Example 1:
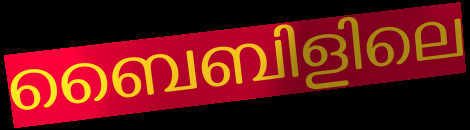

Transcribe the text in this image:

ബൈബിളിലെ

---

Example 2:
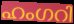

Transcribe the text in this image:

ഹംഗറി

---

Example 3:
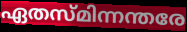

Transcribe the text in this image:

ഏതസ്മിന്നന്തരേ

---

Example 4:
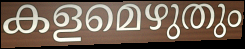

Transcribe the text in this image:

കളമെഴുതും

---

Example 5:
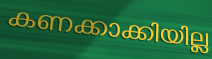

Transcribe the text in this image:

കണക്കാക്കിയില്ല